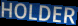
HOLDER